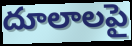
దూలాలపై